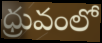
ధ్రువంలో